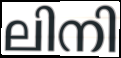
ലിനി